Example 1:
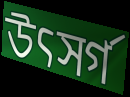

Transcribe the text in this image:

উৎসৰ্গ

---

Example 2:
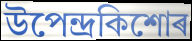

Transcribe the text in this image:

উপেন্দ্ৰকিশোৰ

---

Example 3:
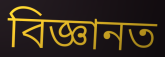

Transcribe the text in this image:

বিজ্ঞানত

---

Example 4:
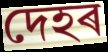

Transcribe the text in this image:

দেহৰ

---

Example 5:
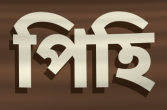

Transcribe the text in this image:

পিহি